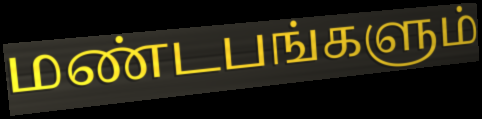
மண்டபங்களும்